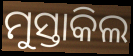
ମୁସ୍ତାକିଲ